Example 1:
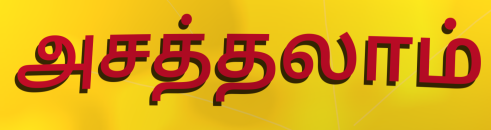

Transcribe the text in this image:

அசத்தலாம்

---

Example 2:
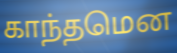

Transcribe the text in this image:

காந்தமென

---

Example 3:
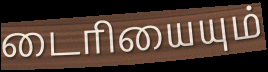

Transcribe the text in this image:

டைரியையும்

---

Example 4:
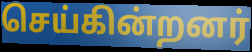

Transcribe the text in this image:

செய்கின்றனர்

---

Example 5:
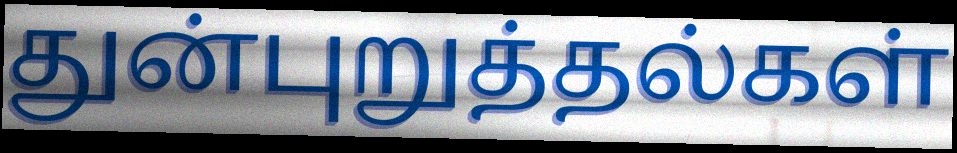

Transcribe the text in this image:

துன்புறுத்தல்கள்